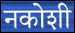
नकोशी